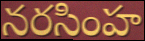
నరసింహ